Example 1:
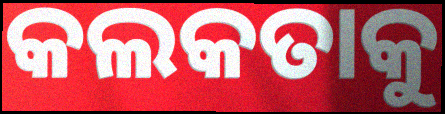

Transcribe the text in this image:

କଲକତାକୁ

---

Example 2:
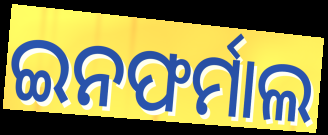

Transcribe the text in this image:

ଇନଫର୍ମାଲ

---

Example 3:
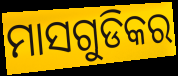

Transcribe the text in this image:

ମାସଗୁଡିକର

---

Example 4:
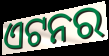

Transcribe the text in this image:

ଏଟନର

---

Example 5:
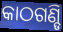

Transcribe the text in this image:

କାଠଗଣ୍ଡି